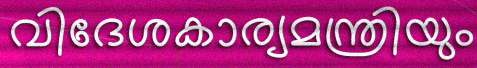
വിദേശകാര്യമന്ത്രിയും